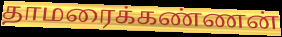
தாமரைக்கண்ணன்